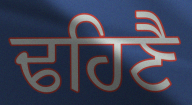
ਢਹਿਣੈ